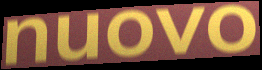
nuovo